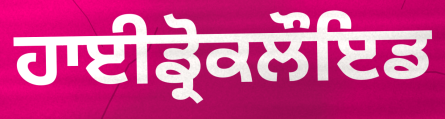
ਹਾਈਡ੍ਰੋਕਲੌਇਡ